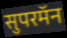
सुपरमॅन